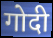
गोदी